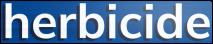
herbicide